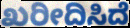
ಖರೀದಿಸಿದೆ